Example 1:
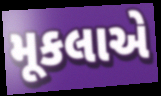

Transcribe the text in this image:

મૂકલાએ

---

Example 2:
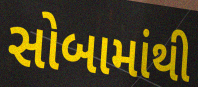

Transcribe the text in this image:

સોબામાંથી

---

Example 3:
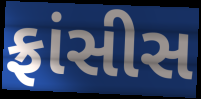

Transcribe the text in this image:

ફ્રાંસીસ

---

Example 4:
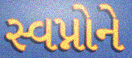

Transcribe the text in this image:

સ્વપ્નોને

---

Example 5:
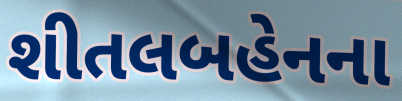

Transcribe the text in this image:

શીતલબહેનના